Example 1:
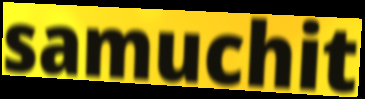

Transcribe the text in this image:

samuchit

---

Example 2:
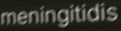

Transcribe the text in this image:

meningitidis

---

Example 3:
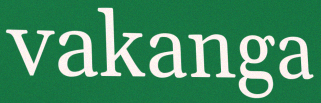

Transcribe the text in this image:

vakanga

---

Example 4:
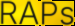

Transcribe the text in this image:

RAPs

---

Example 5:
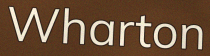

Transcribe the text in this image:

Wharton